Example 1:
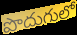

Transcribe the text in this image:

పొదుగులో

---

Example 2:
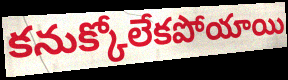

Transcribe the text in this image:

కనుక్కోలేకపోయాయి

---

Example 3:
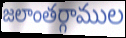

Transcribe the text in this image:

జలాంతర్గాముల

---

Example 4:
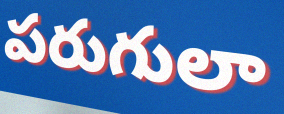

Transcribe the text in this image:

పరుగులా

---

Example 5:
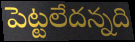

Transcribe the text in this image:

పెట్టలేదన్నది